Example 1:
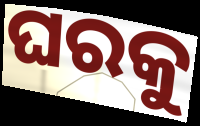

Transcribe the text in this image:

ଘରକୁ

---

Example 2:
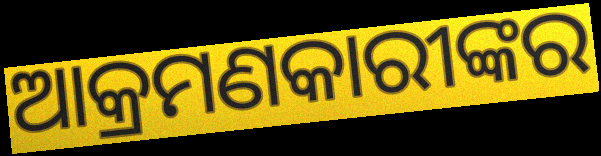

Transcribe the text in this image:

ଆକ୍ରମଣକାରୀଙ୍କର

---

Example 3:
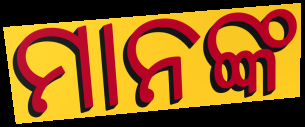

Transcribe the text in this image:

ମାନଙ୍କ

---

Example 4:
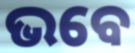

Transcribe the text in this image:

ଭବେ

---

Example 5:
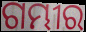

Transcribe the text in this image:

ଗମ୍ଭୀର